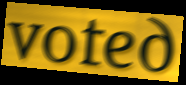
voted